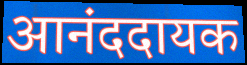
आनंददायक